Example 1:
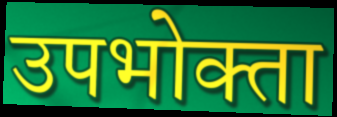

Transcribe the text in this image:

उपभोक्‍ता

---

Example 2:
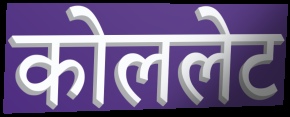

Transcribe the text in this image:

कोललेट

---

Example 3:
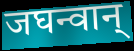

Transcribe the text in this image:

जघन्वान्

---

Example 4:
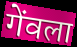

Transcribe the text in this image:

गेंवला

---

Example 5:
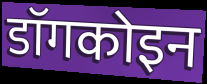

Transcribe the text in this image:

डॉगकोइन